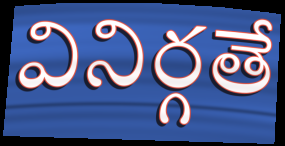
వినిర్గతే